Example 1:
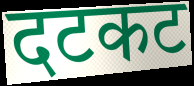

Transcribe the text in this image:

दटकट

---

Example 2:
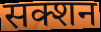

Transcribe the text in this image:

सक्शन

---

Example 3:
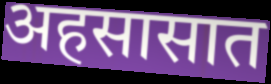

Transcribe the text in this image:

अहसासात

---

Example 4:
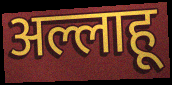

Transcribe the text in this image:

अल्लाहू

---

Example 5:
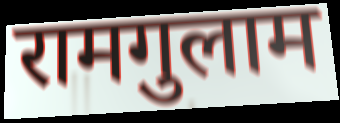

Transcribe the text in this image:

रामगुलाम